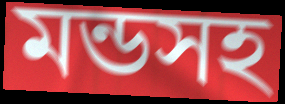
মন্ডসহ